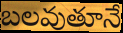
బలవుతూనే